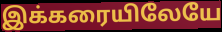
இக்கரையிலேயே